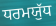
ਧਰਮਯੁੱਧ